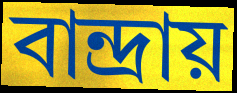
বান্দ্রায়